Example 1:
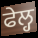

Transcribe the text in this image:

ਫੇਲ੍ਹ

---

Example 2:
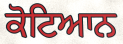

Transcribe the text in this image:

ਕੋਟਿਆਨ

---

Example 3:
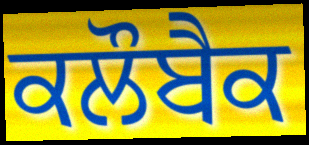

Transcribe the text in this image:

ਕਲੌਬੈਕ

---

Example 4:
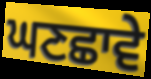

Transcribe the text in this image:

ਘਣਛਾਵੇ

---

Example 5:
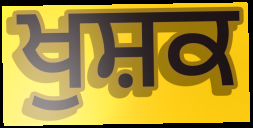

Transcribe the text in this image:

ਖੁਸ਼ਕ